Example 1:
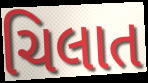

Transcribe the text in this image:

ચિલાત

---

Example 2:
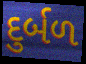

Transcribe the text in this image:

દુર્બળ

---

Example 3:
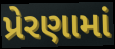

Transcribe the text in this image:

પ્રેરણામાં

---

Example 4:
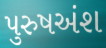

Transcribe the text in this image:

પુરુષઅંશ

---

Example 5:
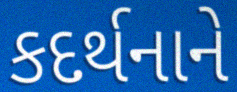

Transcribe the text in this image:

કદર્થનાને